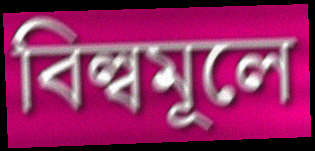
বিল্বমূলে